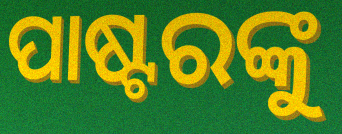
ପାଷ୍ଟରଙ୍କୁ